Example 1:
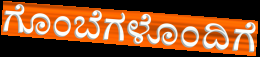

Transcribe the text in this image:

ಗೊಂಬೆಗಳೊಂದಿಗೆ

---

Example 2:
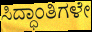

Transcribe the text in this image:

ಸಿದ್ಧಾಂತಿಗಳೇ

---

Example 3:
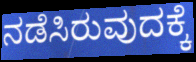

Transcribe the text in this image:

ನಡೆಸಿರುವುದಕ್ಕೆ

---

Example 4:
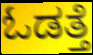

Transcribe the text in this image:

ಓಡತ್ತೆ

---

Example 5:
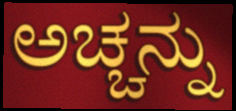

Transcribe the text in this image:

ಅಚ್ಚನ್ನು